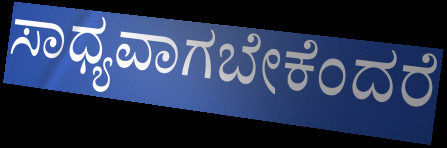
ಸಾಧ್ಯವಾಗಬೇಕೆಂದರೆ